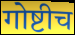
गोष्टीच